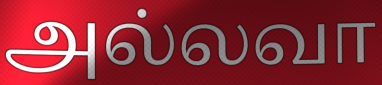
அல்லவா